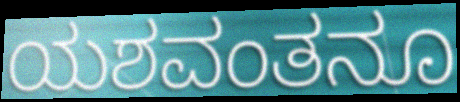
ಯಶವಂತನೂ